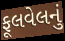
ફૂલવેલનું